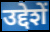
उद्देशें